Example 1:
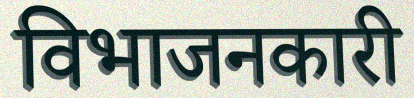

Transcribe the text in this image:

विभाजनकारी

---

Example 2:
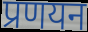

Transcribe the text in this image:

प्रणयन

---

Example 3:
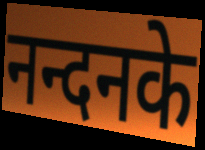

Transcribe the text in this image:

नन्दनके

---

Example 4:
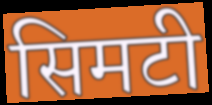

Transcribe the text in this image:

सिमटी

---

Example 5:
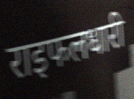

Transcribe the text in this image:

राइफलधारी